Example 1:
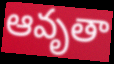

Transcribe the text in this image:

ఆవృతా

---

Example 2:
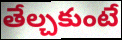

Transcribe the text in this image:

తేల్చకుంటే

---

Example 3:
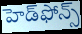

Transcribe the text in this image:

హెడ్‌ఫోన్స్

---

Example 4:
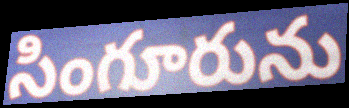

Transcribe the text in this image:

సింగూరును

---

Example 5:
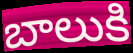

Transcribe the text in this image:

బాలుకి